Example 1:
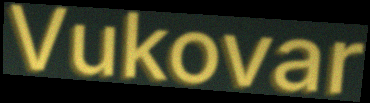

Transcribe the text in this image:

Vukovar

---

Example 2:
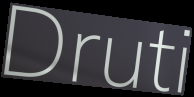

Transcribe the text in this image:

Druti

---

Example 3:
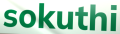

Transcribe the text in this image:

sokuthi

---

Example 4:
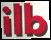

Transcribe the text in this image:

ilb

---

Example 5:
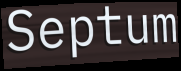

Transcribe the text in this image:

Septum